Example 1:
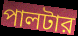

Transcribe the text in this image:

পালটার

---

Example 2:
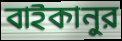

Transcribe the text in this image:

বাইকানুর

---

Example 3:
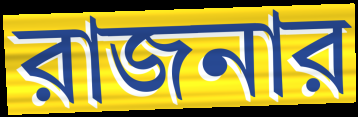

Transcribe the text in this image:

রাজনার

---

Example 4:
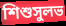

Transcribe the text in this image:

শিশুসুলভ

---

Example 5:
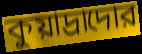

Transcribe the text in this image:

কুয়াদ্রাদোর